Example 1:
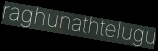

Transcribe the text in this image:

raghunathtelugu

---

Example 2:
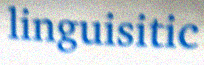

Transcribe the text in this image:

linguisitic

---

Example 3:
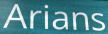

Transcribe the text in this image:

Arians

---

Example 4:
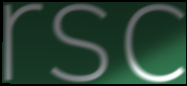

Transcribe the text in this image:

rsc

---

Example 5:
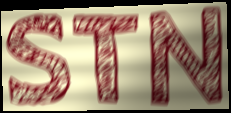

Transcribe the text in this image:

STN